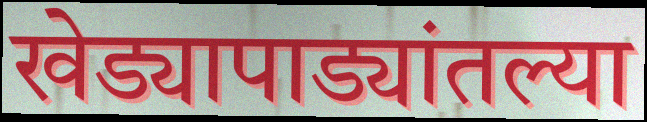
खेड्यापाड्यांतल्या